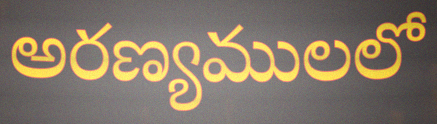
అరణ్యములలో